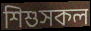
শিশুসকল